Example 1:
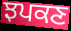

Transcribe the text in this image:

ਝਪਕਣ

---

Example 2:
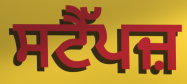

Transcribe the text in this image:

ਸਟੈੱਪਜ਼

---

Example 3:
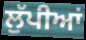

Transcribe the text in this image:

ਲੁੱਪੀਆਂ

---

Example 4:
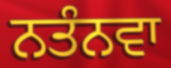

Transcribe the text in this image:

ਨਤੰਨਵਾ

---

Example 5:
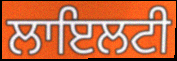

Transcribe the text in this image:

ਲਾਇਲਟੀ